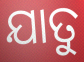
ଯାତୁ